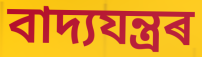
বাদ্যযন্ত্ৰৰ